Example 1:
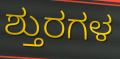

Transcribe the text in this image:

ಶ್ತುರಗಳ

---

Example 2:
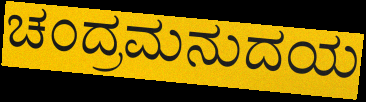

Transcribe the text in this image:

ಚಂದ್ರಮನುದಯ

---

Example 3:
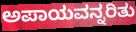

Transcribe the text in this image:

ಅಪಾಯವನ್ನರಿತು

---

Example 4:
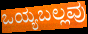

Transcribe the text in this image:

ಒಯ್ಯಬಲ್ಲವು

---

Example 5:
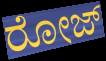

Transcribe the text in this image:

ರೋಜ್